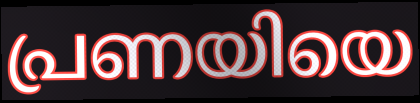
പ്രണയിയെ